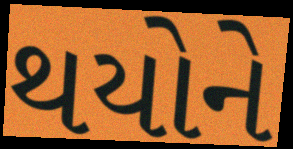
થયોને